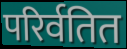
परिर्वतित